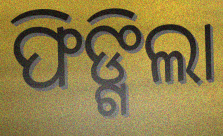
ଫିଙ୍ଗିଲା